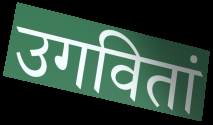
उगवितां